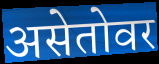
असेतोवर